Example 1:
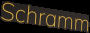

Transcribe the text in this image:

Schramm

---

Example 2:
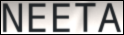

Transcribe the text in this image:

NEETA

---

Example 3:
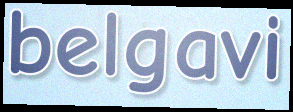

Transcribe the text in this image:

belgavi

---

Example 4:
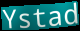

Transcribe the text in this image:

Ystad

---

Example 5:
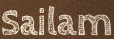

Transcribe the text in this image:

Sailam